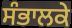
ਸੰਭਾਲਕੇ